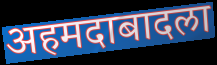
अहमदाबादला